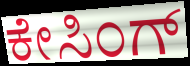
ಕೇಸಿಂಗ್